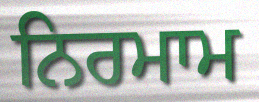
ਨਿਰਮਾਮ